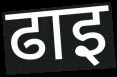
ढाइ